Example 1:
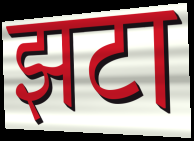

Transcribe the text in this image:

झटा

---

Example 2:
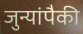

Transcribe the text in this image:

जुन्यांपैकी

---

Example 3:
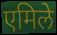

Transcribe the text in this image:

एमिले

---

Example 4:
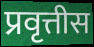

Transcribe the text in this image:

प्रवृत्तीस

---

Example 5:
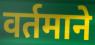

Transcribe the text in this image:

वर्तमाने